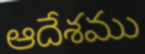
ఆదేశము